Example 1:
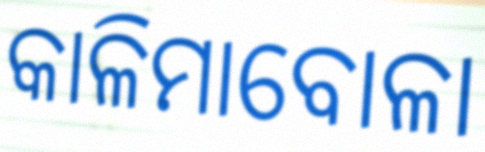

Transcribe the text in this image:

କାଳିମାବୋଳା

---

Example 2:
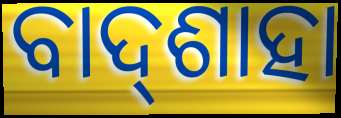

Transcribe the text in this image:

ବାଦ୍‌ଶାହା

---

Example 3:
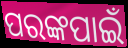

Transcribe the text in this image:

ପରଙ୍କପାଇଁ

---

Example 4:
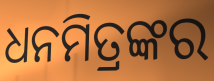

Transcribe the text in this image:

ଧନମିତ୍ରଙ୍କର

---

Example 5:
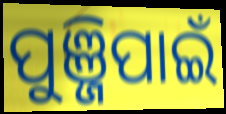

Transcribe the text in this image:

ପୁଞ୍ଜିପାଇଁ